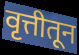
वृत्तीतून